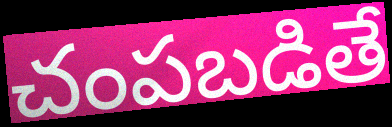
చంపబడితే